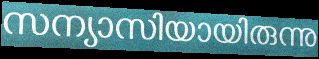
സന്യാസിയായിരുന്നു